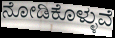
ನೋಡಿಕೊಳ್ಳುವೆ